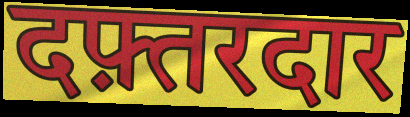
दफ़्तरदार